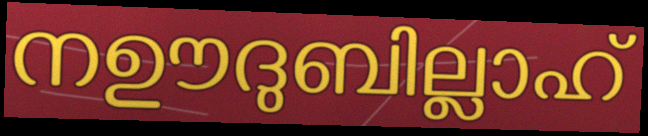
നഊദുബില്ലാഹ്